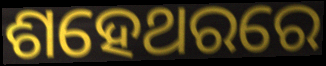
ଶହେଥରରେ